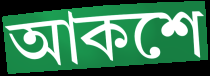
আকশে